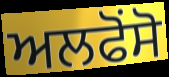
ਅਲਫੋਂਸੋ